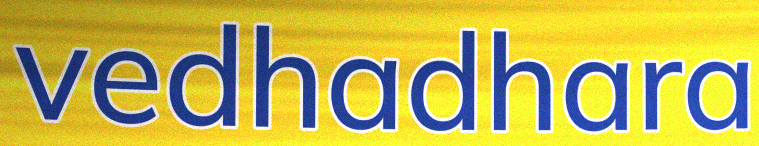
vedhadhara